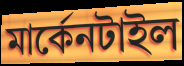
মার্কেনটাইল